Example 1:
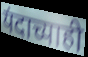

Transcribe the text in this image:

यंदाच्याही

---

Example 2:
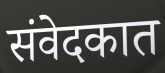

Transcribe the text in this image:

संवेदकात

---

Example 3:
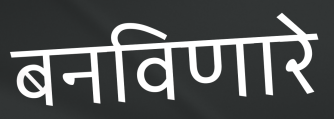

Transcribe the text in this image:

बनविणारे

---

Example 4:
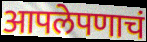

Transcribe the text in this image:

आपलेपणाचं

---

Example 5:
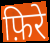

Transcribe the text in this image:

फ़िरे